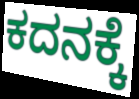
ಕದನಕ್ಕೆ